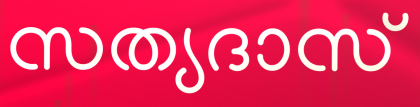
സത്യദാസ്